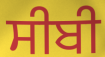
ਸੀਬੀ